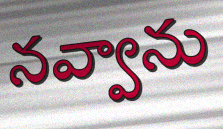
నవ్వాను